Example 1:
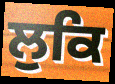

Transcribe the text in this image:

ਲੁਕਿ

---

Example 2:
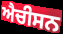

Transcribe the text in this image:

ਐਚੀਸਨ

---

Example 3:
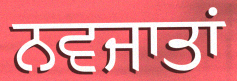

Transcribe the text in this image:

ਨਵਜਾਤਾਂ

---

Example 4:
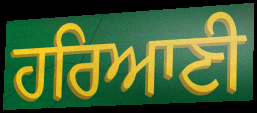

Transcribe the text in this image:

ਹਰਿਆਣੀ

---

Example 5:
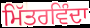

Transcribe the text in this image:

ਮਿੱਤਰਵਿੰਦਾ